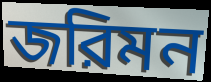
জরিমন